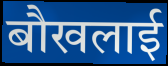
बौखलाई